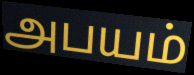
அபயம்